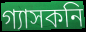
গ্যাসকনি